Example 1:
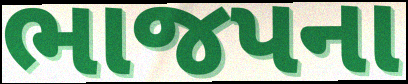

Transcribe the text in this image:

ભાજપના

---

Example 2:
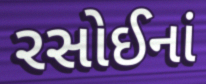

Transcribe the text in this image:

રસોઈનાં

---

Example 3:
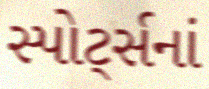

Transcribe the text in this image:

સ્પોર્ટ્સનાં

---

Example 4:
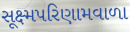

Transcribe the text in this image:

સૂક્ષ્મપરિણામવાળા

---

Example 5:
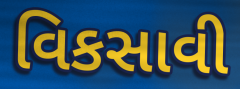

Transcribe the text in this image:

વિકસાવી